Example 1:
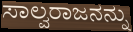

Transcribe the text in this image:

ಸಾಲ್ವರಾಜನನ್ನು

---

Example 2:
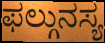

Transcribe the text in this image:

ಫಲ್ಗುನಸ್ಯ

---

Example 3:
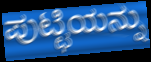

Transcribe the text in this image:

ಪುಟ್ಟಿಯನ್ನು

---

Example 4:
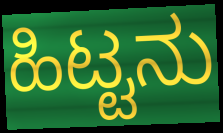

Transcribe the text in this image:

ಹಿಟ್ಟನು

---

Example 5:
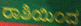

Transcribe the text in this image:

ರಾಶಿಯಿಂದ